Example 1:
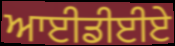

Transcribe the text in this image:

ਆਈਡੀਈਏ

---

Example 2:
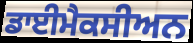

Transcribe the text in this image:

ਡਾਈਮੈਕਸੀਅਨ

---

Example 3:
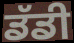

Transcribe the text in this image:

ਡੱਡੀ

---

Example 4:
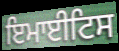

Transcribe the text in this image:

ਇਮਾਈਟਿਸ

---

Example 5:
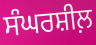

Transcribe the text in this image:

ਸੰਘਰਸ਼ੀਲ਼